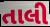
તાલી